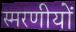
स्मरणीयों